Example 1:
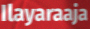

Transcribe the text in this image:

Ilayaraaja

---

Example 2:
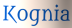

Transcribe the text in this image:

Kognia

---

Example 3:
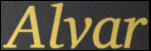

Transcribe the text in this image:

Alvar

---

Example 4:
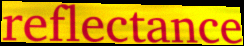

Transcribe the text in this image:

reflectance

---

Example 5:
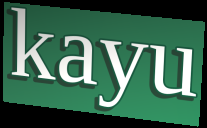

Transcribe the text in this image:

kayu